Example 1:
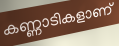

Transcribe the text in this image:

കണ്ണാടികളാണ്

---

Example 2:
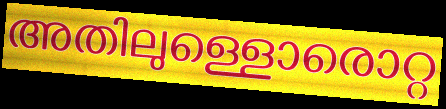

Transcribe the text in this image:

അതിലുള്ളൊരൊറ്റ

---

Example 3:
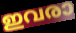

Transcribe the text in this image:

ഇവരാ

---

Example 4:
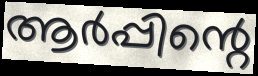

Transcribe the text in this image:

ആർപ്പിന്റെ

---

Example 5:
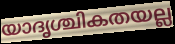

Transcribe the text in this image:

യാദൃശ്ചികതയല്ല